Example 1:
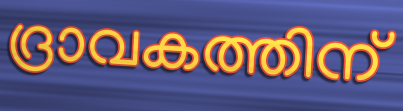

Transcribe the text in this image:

ദ്രാവകത്തിന്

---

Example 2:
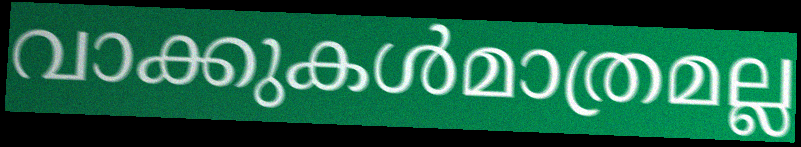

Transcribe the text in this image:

വാക്കുകൾമാത്രമല്ല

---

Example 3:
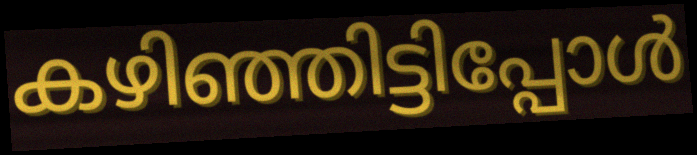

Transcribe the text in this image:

കഴിഞ്ഞിട്ടിപ്പോൾ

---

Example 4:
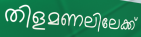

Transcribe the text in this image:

തിളമണലിലേക്ക്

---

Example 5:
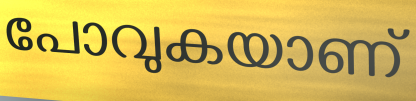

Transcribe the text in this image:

പോവുകയാണ്